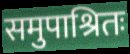
समुपाश्रितः